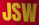
JSW